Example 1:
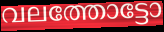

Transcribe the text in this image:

വലത്തോട്ടോ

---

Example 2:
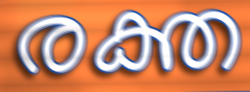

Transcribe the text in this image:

രക്ത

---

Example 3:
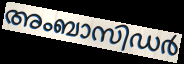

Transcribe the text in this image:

അംബാസിഡർ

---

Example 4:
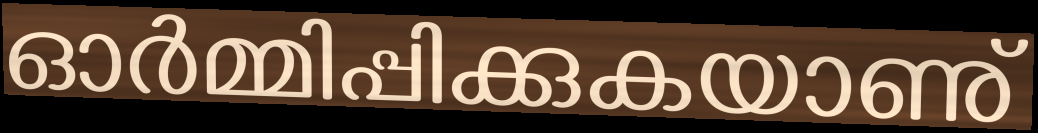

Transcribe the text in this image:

ഓർമ്മിപ്പിക്കുകയാണു്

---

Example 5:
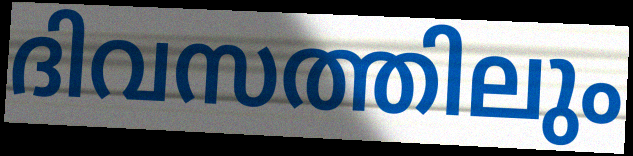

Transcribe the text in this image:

ദിവസത്തിലും